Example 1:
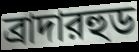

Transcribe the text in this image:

ব্রাদারহুড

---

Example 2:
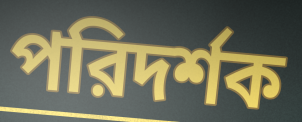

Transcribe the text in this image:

পরিদর্শক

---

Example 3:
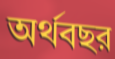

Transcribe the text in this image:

অর্থবছর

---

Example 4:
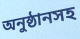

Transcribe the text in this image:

অনুষ্ঠানসহ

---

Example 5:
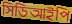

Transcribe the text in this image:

সিডিআইপি